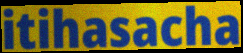
itihasacha